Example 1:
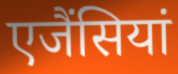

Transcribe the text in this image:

एजैंसियां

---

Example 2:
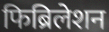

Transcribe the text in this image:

फिब्रिलेशन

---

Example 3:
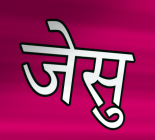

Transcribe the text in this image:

जेसु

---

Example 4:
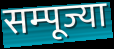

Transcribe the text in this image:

सम्पूज्या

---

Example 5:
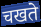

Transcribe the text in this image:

चखते